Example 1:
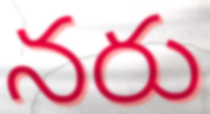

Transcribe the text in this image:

నరు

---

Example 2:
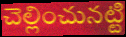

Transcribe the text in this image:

చెల్లించునట్టి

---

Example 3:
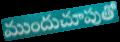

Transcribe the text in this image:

ముందుచూపుతో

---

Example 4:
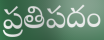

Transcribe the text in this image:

ప్రతిపదం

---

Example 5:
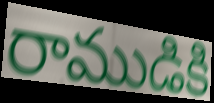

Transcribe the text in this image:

రాముడికి